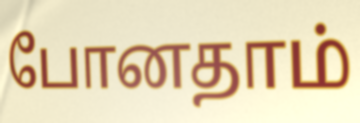
போனதாம்